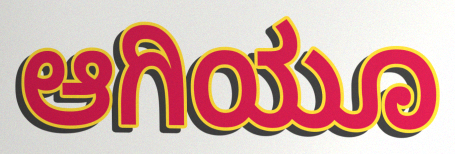
ಆಗಿಯೂ